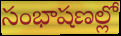
సంభాషణల్లో